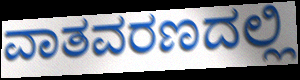
ವಾತವರಣದಲ್ಲಿ